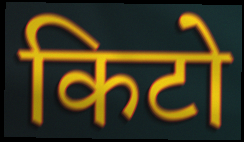
किटो